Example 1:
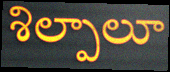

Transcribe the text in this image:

శిల్పాలూ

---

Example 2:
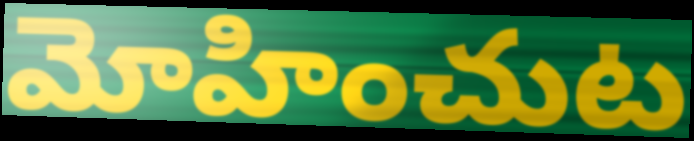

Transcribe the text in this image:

మోహించుట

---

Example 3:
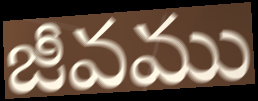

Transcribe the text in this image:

జీవము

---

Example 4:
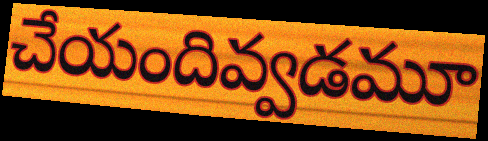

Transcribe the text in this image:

చేయందివ్వడమూ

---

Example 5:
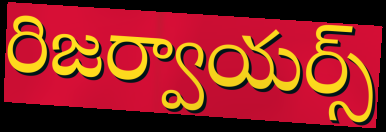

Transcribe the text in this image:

రిజర్వాయర్స్